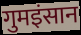
गुमइंसान